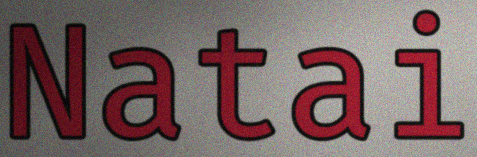
Natai